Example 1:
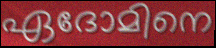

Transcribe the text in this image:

ഏദോമിനെ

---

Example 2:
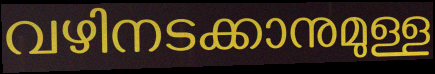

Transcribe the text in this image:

വഴിനടക്കാനുമുള്ള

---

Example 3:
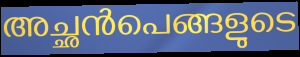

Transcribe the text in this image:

അച്ഛൻപെങ്ങളുടെ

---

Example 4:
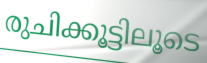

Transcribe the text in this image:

രുചിക്കൂട്ടിലൂടെ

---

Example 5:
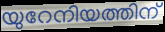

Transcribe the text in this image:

യുറേനിയത്തിന്